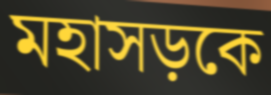
মহাসড়কে